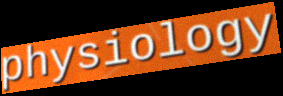
physiology